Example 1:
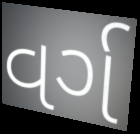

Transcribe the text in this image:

વર્ગ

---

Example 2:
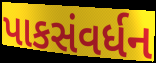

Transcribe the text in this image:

પાકસંવર્ધન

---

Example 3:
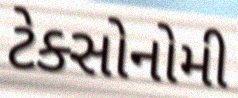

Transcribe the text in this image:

ટેક્સોનોમી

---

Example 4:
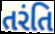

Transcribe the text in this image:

તરંતિ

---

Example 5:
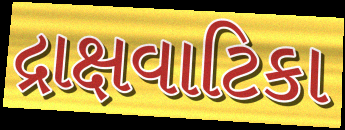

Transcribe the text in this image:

દ્રાક્ષવાટિકા